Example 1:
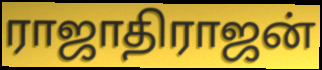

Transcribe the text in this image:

ராஜாதிராஜன்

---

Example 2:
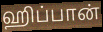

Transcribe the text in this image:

ஹிப்பான்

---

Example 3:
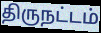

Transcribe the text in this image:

திருநட்டம்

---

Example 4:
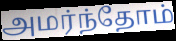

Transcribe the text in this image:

அமர்ந்தோம்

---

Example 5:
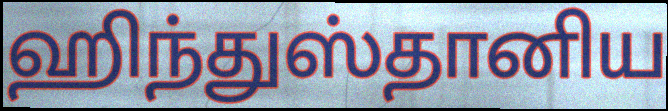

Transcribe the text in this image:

ஹிந்துஸ்தானிய